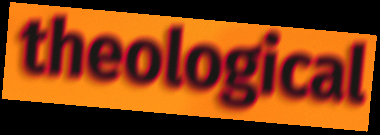
theological